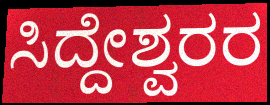
ಸಿದ್ದೇಶ್ವರರ